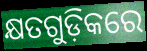
କ୍ଷତଗୁଡ଼ିକରେ